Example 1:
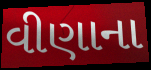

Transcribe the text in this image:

વીણાના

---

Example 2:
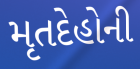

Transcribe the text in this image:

મૃતદેહોની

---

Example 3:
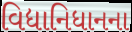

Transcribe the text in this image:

વિદ્યાનિધાનના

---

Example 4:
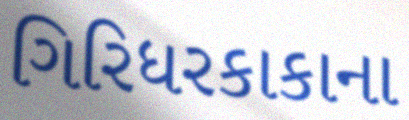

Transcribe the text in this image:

ગિરિધરકાકાના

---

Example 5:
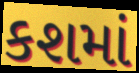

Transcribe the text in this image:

કશમાં